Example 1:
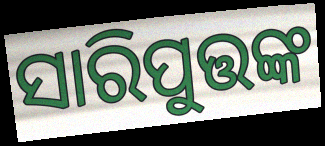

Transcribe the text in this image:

ସାରିପୁତ୍ତଙ୍କ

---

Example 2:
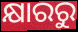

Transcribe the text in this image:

କ୍ଷାରରୁ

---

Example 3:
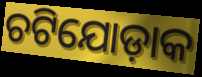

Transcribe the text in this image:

ଚଟିଯୋଡ଼ାକ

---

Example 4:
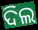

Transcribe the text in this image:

ଦିଲ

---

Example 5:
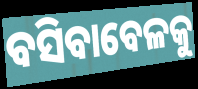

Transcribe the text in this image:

ବସିବାବେଳକୁ